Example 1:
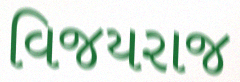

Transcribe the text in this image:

વિજયરાજ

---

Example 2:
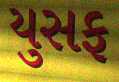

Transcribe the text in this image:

યુસફ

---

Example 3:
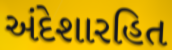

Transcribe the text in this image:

અંદેશારહિત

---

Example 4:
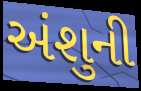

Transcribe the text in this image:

અંશુની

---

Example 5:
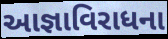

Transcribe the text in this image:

આજ્ઞાવિરાધના